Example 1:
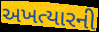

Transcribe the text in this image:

અખત્યારની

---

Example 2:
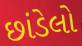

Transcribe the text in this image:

છાંડેલો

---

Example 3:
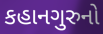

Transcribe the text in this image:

કહાનગુરુનો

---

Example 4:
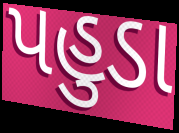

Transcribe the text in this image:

પહુડા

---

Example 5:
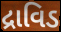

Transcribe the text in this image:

દ્રાવિડ